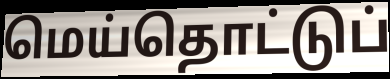
மெய்தொட்டுப்